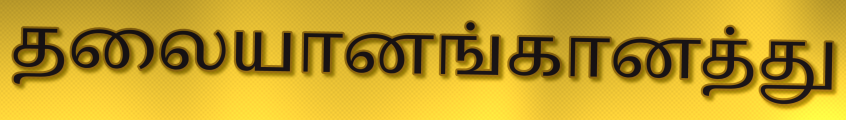
தலையானங்கானத்து